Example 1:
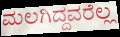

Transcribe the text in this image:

ಮಲಗಿದ್ದವರೆಲ್ಲ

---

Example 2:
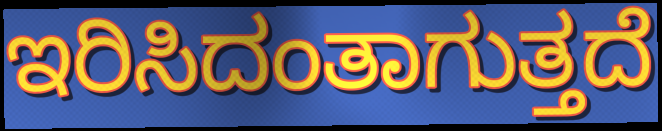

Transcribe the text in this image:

ಇರಿಸಿದಂತಾಗುತ್ತದೆ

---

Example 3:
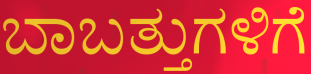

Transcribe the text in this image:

ಬಾಬತ್ತುಗಳಿಗೆ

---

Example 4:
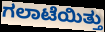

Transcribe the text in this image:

ಗಲಾಟೆಯಿತ್ತು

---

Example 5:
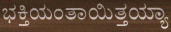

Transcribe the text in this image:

ಭಕ್ತಿಯಂತಾಯಿತ್ತಯ್ಯಾ